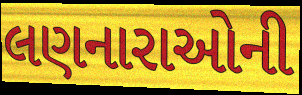
લણનારાઓની